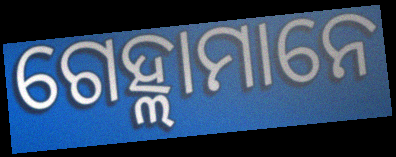
ଗେହ୍ଲାମାନେ